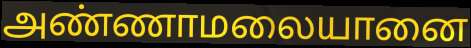
அண்ணாமலையானை